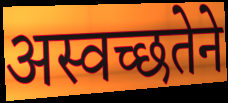
अस्वच्छतेने